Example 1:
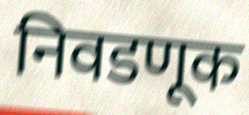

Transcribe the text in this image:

निवडणूक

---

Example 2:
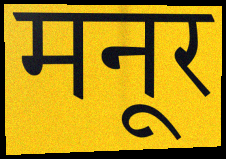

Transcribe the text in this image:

मनूर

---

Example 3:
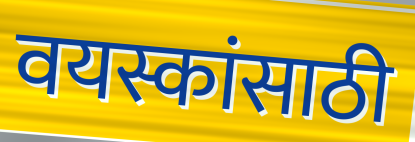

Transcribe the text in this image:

वयस्कांसाठी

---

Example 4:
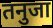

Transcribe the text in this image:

तनुजा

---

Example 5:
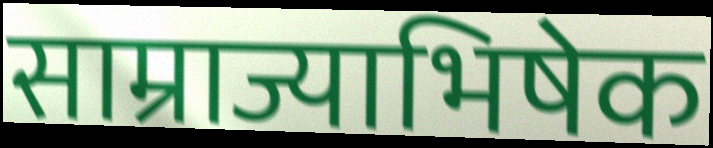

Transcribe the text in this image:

साम्राज्याभिषेक